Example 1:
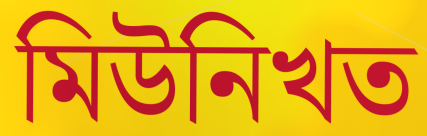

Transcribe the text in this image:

মিউনিখত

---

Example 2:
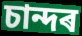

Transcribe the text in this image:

চান্দৰ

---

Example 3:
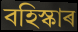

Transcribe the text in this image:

বহিস্কাৰ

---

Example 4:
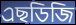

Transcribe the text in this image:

এছডিজি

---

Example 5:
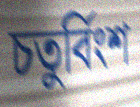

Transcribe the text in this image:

চতুৰ্বিংশ